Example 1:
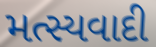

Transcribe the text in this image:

મત્સ્યવાદી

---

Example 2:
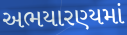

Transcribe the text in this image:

અભયારણ્યમાં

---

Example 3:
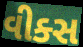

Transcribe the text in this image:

વીક્સ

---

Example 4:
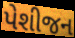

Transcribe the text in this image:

પેશીજન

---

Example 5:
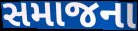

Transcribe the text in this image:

સમાજના